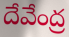
దేవేంద్ర